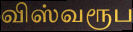
விஸ்வரூப